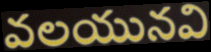
వలయునవి